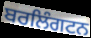
ਬਰਲਿੰਗਟਨ